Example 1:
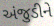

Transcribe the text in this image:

અંજુડીને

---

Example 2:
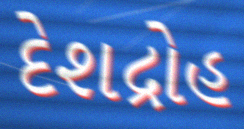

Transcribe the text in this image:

દેશદ્રોહ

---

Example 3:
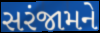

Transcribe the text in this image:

સરંજામને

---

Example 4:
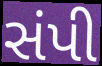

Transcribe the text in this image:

સંપી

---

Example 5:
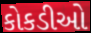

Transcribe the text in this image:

કોકડીઓ